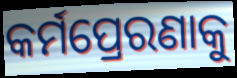
କର୍ମପ୍ରେରଣାକୁ